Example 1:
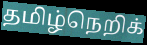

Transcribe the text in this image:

தமிழ்நெறிக்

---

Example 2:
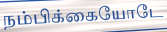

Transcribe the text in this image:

நம்பிக்கையோடே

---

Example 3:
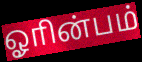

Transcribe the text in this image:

ஓரின்பம்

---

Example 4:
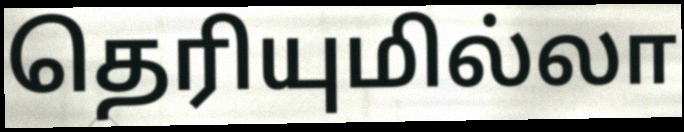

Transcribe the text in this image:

தெரியுமில்லா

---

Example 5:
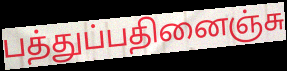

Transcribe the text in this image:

பத்துப்பதினைஞ்சு